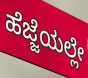
ಹೆಜ್ಜೆಯಲ್ಲೇ